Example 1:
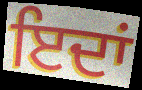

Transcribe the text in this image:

ਇਦਾਂ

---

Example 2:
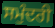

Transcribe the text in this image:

ਸਮੁੰਦਰੀ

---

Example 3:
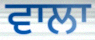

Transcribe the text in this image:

ਵਾਲਾ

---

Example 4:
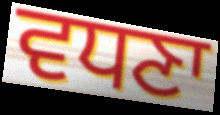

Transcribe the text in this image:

ਵਧਣਾ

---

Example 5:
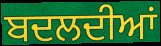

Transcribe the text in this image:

ਬਦਲਦੀਆਂ